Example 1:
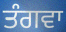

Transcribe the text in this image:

ਤੰਗਵਾ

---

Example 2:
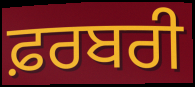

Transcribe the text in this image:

ਫ਼ਰਬਰੀ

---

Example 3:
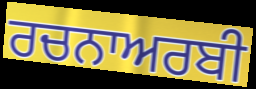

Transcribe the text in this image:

ਰਚਨਾਅਰਬੀ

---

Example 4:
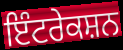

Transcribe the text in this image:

ਇੰਟਰੇਕਸ਼ਨ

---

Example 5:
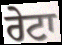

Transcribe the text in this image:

ਰੇਟਾ